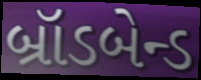
બ્રૉડબેન્ડ